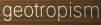
geotropism